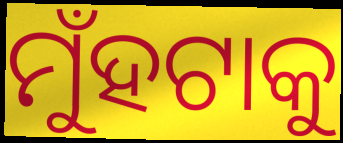
ମୁଁହଟାକୁ